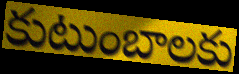
కుటుంబాలకు